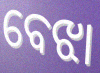
ବେଝା